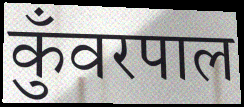
कुँवरपाल